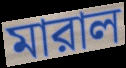
মারাল